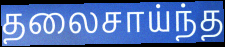
தலைசாய்ந்த